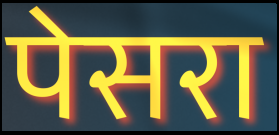
पेसरा